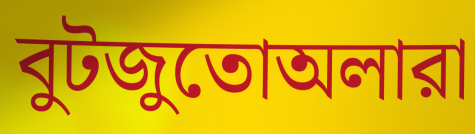
বুটজুতোঅলারা